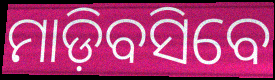
ମାଡ଼ିବସିବେ